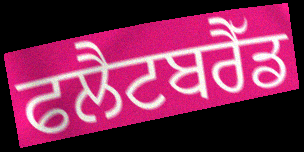
ਫਲੈਟਬਰੈੱਡ